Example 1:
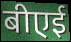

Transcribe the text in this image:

बीएई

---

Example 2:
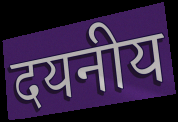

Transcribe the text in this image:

दयनीय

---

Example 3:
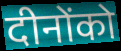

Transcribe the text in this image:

दीनोंको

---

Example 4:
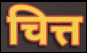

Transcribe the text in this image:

चित्त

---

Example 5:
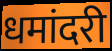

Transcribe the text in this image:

धमांदरी